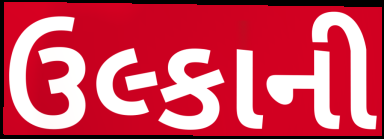
ઉલ્કાની